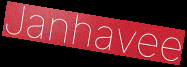
Janhavee